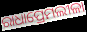
ରାଧାପ୍ରେମଲୀଳା